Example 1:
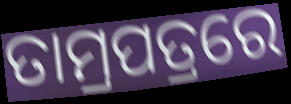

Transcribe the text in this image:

ତାମ୍ରପତ୍ରରେ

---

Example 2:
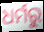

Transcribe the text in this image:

ଧର୍ମରୁ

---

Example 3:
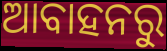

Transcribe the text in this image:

ଆବାହନରୁ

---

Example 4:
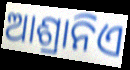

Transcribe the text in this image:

ଆଶ୍ରାନିଏ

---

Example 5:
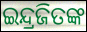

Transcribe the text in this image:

ଇନ୍ଦ୍ରଜିତଙ୍କ